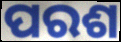
ପରଶ